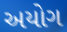
અયોગ